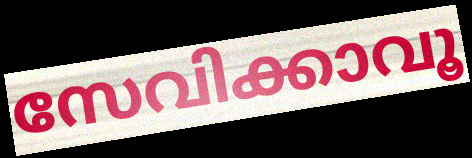
സേവിക്കാവൂ